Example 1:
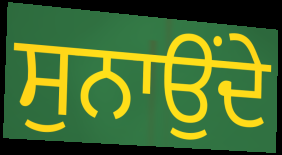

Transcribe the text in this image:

ਸੁਨਾਉਂਦੇ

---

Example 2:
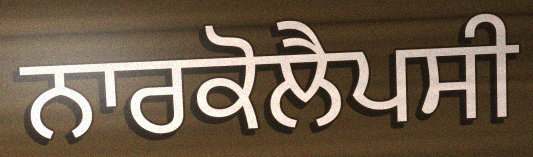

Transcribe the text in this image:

ਨਾਰਕੋਲੈਪਸੀ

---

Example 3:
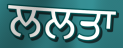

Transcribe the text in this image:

ਲਲਤਾ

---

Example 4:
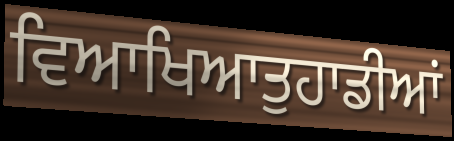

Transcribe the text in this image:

ਵਿਆਖਿਆਤੁਹਾਡੀਆਂ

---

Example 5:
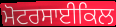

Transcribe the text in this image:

ਮੋਟਰਸਾਈਕਿਲ